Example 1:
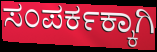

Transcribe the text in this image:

ಸಂಪರ್ಕಕ್ಕಾಗಿ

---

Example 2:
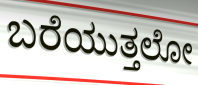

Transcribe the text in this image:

ಬರೆಯುತ್ತಲೋ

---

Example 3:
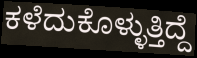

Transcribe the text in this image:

ಕಳೆದುಕೊಳ್ಳುತ್ತಿದ್ದೆ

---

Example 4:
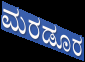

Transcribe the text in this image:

ಮರಡೂರ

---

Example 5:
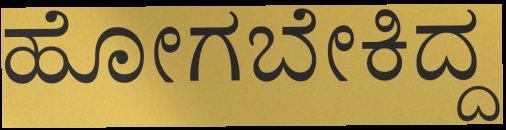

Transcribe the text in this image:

ಹೋಗಬೇಕಿದ್ದ